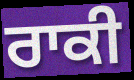
ਰਾਕੀ